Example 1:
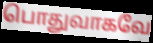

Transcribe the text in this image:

பொதுவாகவே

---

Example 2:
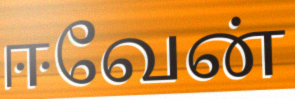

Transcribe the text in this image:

ஈவேன்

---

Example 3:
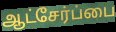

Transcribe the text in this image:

ஆட்சேர்ப்பை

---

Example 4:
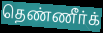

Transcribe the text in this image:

தெண்ணீர்க்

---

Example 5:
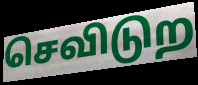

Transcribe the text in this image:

செவிடுற